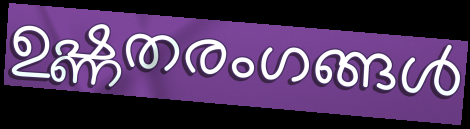
ഉഷ്ണതരംഗങ്ങൾ